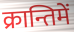
क्रान्तिमें